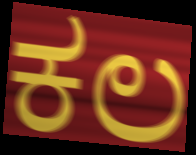
ಕಲ